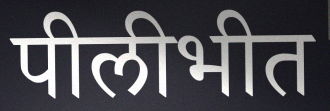
पीलीभीत